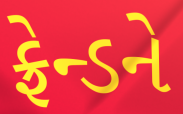
ફ્રેન્ડને